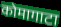
कोमागाटा